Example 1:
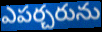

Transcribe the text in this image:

ఎపర్చరును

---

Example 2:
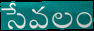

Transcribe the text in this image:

సేవలం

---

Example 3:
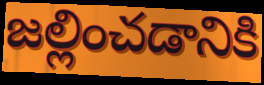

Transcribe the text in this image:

జల్లించడానికి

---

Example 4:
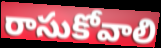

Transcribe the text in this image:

రాసుకోవాలి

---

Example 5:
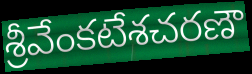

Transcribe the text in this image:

శ్రీవేంకటేశచరణౌ